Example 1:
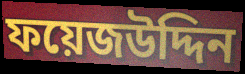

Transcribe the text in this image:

ফয়েজউদ্দিন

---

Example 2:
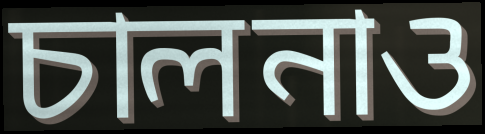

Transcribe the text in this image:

চালনাও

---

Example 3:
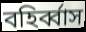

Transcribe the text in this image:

বহির্ব্বাস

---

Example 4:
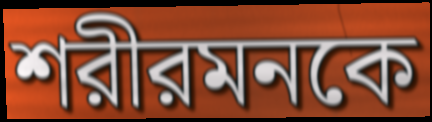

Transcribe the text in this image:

শরীরমনকে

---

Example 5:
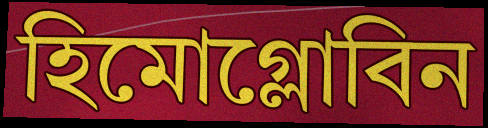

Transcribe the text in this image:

হিমোগ্লোবিন